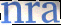
nra